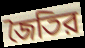
জৈতির